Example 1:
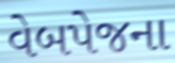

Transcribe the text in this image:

વેબપેજના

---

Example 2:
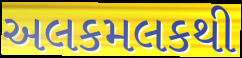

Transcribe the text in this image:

અલકમલકથી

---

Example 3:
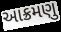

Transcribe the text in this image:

આક્રમણુ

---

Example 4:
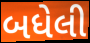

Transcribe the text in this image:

બધેલી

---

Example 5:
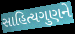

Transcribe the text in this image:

સાહિત્યગુણને